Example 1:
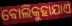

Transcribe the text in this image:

ବୋଲିକୁହାଯାଏ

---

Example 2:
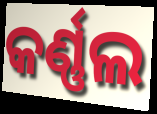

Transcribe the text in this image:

କର୍ଣ୍ଣଲ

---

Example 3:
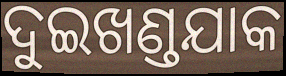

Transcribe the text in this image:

ଦୁଇଖଣ୍ଡଯାକ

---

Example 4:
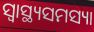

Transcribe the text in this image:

ସ୍ୱାସ୍ଥ୍ୟସମସ୍ୟା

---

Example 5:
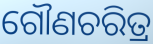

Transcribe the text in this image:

ଗୌଣଚରିତ୍ର